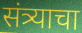
संत्र्याचा